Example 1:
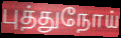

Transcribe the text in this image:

புத்துநோய்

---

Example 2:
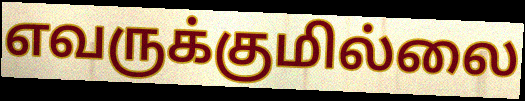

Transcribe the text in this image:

எவருக்குமில்லை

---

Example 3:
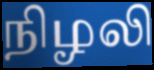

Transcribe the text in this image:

நிழலி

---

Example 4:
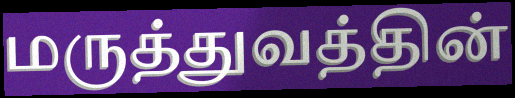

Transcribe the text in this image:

மருத்துவத்தின்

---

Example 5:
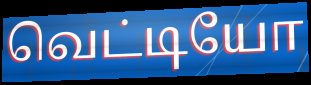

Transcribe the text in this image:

வெட்டியோ